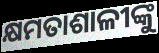
କ୍ଷମତାଶାଳୀଙ୍କୁ